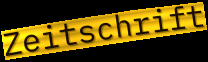
Zeitschrift